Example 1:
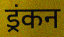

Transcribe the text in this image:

ड्रंकन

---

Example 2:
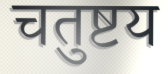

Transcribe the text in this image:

चतुष्टय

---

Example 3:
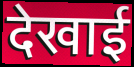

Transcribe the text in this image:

देखाई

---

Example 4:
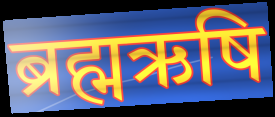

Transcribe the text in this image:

ब्रह्मऋषि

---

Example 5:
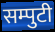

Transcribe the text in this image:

सम्पुटी